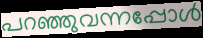
പറഞ്ഞുവന്നപ്പോൾ